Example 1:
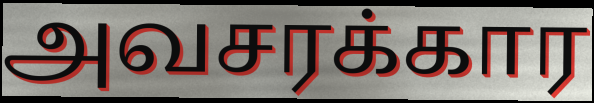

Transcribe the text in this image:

அவசரக்கார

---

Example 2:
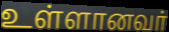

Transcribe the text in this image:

உள்ளானவர்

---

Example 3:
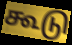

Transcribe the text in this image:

கூடு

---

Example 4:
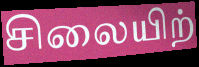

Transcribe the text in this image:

சிலையிற்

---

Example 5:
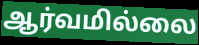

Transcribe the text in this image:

ஆர்வமில்லை